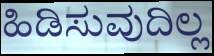
ಹಿಡಿಸುವುದಿಲ್ಲ